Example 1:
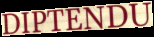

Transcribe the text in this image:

DIPTENDU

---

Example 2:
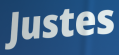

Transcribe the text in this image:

Justes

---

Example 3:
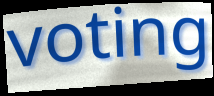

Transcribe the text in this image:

voting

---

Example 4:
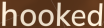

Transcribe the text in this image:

hooked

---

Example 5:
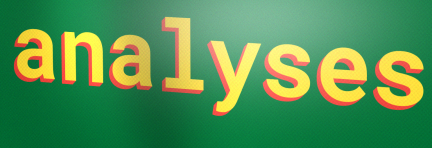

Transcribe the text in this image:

analyses